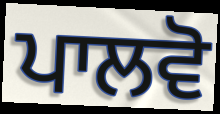
ਪਾਲਵੋ